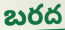
బరద